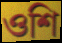
ওশি